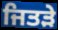
ਜਿਤੜੇ